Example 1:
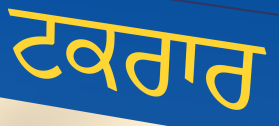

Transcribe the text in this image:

ਟਕਰਾਰ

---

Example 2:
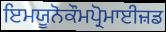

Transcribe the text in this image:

ਇਮਯੂਨੋਕੌਮਪ੍ਰੋਮਾਈਜ਼ਡ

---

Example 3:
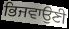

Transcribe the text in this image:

ਭਿਜਵਾਉਣੀ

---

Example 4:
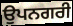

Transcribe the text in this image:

ਉਪਨਗਰੀ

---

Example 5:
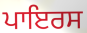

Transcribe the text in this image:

ਪਾਇਰਸ